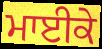
ਮਾਈਕੇ